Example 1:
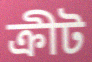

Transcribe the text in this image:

ক্রীট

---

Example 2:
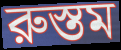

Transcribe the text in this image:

রুস্তম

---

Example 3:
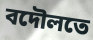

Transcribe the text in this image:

বদৌলতে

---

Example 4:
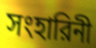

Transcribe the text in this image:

সংহারিনী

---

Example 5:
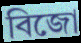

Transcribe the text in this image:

বিজো